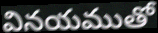
వినయముతో